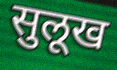
सुलूख